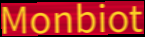
Monbiot